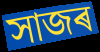
সাজৰ